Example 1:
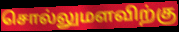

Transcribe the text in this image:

சொல்லுமளவிற்கு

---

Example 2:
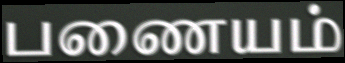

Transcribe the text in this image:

பணையம்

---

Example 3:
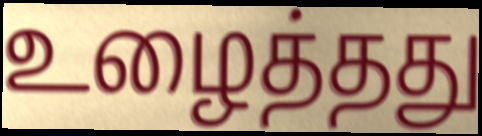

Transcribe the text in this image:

உழைத்தது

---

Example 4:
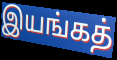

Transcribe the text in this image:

இயங்கத்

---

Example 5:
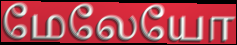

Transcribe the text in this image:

மேலேயோ